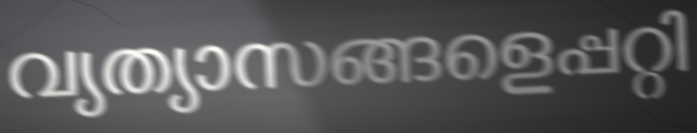
വ്യത്യാസങ്ങളെപ്പറ്റി